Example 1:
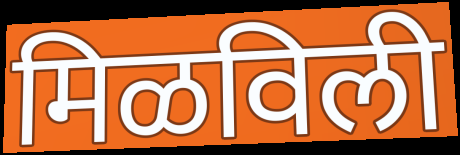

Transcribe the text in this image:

मिळविली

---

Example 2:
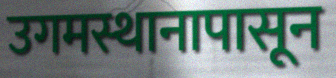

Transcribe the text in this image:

उगमस्थानापासून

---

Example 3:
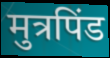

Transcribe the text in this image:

मुत्रपिंड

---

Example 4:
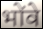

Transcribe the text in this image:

भोंवे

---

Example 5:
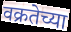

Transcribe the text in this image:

वक्रतेच्या